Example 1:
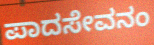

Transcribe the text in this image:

ಪಾದಸೇವನಂ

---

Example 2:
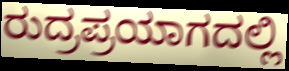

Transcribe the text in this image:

ರುದ್ರಪ್ರಯಾಗದಲ್ಲಿ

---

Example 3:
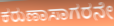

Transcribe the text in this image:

ಕರುಣಾಸಾಗರನೇ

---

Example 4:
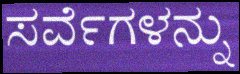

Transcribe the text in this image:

ಸರ್ವೆಗಳನ್ನು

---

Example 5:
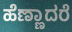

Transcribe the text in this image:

ಹೆಣ್ಣಾದರೆ